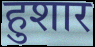
हुशार